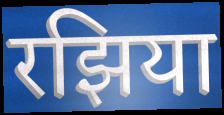
रझिया